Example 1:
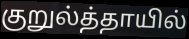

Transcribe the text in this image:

குறுல்த்தாயில்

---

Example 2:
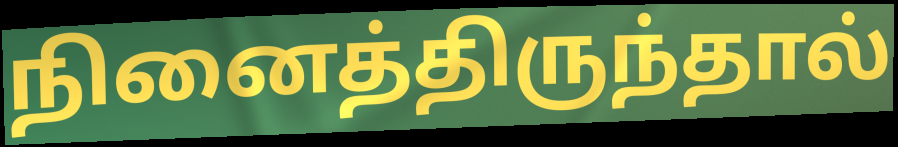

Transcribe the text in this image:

நினைத்திருந்தால்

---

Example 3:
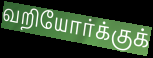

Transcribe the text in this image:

வறியோர்க்குக்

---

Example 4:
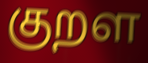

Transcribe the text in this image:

குறள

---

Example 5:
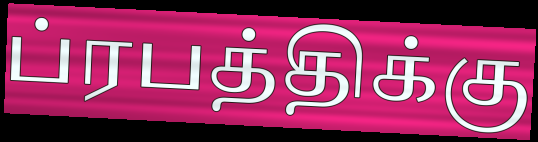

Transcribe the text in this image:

ப்ரபத்திக்கு